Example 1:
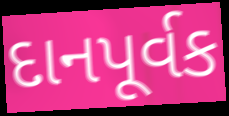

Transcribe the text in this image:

દાનપૂર્વક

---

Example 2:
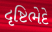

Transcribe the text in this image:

દૃષ્ટિભેદે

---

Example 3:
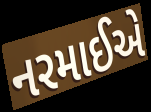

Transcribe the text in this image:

નરમાઈએ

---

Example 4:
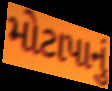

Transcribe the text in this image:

મોટાપાનું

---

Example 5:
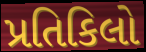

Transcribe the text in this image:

પ્રતિકિલો